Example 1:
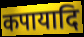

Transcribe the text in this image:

कपायादि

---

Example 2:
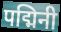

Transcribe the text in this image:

पद्मिनी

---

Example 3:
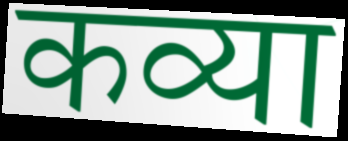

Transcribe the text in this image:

कव्या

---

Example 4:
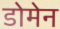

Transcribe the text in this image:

डोमेन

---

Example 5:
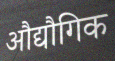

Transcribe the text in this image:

औद्यौगिक